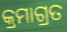
କ୍ରମାଗ୍ରତ